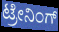
ಟ್ರೇನಿಂಗ್